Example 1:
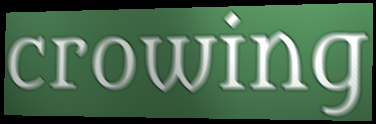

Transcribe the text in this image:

crowing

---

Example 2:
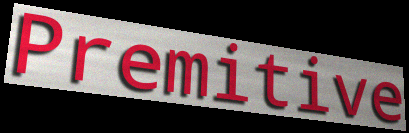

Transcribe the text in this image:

Premitive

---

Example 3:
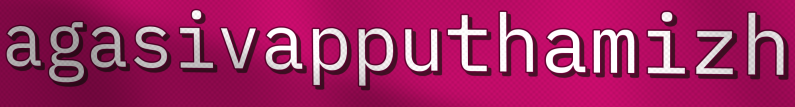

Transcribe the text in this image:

agasivapputhamizh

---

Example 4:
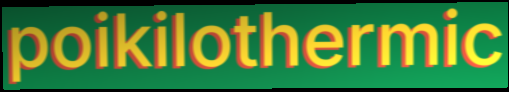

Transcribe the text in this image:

poikilothermic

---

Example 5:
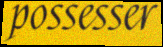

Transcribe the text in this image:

possesser